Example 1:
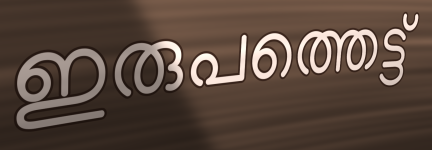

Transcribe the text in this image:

ഇരുപത്തെട്ട്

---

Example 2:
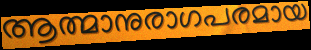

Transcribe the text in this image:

ആത്മാനുരാഗപരമായ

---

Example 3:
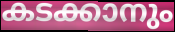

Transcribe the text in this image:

കടക്കാനും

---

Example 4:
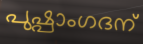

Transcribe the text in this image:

പുഷ്പാംഗദന്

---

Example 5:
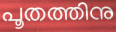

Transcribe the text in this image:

പൂതത്തിനു